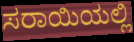
ಸರಾಯಿಯಲ್ಲಿ